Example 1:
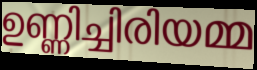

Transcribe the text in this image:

ഉണ്ണിച്ചിരിയമ്മ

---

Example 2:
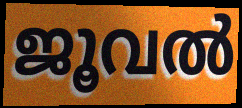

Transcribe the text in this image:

ജൂവൽ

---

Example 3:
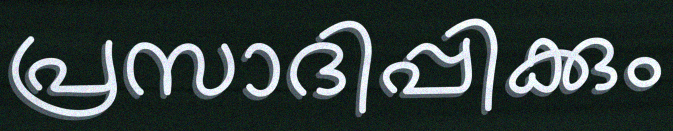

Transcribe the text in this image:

പ്രസാദിപ്പിക്കും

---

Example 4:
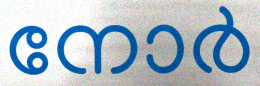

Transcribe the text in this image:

നോർ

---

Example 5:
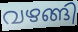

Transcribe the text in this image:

വഴങ്ങി